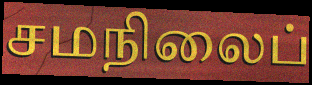
சமநிலைப்